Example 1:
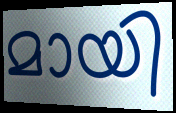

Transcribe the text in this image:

മായി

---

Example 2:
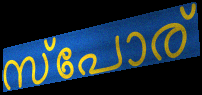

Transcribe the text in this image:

സ്പോര്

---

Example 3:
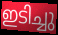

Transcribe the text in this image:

ഇടിച്ചു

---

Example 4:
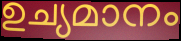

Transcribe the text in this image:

ഉച്യമാനം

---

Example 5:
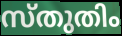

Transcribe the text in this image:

സ്തുതിം